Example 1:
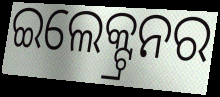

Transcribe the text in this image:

ଇଲେକ୍ଟ୍ରନର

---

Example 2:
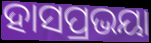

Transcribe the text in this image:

ହାସପ୍ରଭୟା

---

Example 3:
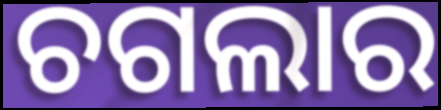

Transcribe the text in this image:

ଚଗଲାର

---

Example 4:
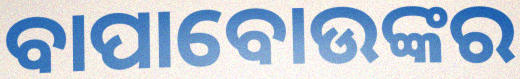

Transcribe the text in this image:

ବାପାବୋଉଙ୍କର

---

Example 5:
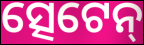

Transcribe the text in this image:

ତ୍ସେଟେନ୍